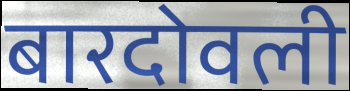
बारदोवली